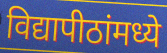
विद्यापीठांमध्ये